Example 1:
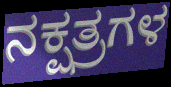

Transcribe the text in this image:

ನಕ್ಷತ್ರಗಳ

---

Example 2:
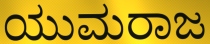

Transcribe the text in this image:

ಯುಮರಾಜ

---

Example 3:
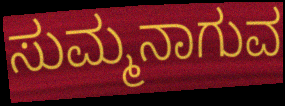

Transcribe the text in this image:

ಸುಮ್ಮನಾಗುವ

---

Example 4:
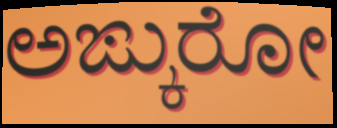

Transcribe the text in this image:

ಅಙ್ಕುರೋ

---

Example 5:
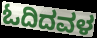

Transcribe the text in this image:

ಓದಿದವಳ